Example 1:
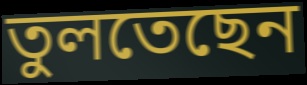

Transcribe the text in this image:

তুলতেছেন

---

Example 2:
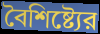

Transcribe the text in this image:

বৈশিষ্ট্যের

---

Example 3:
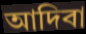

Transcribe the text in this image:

আদিবা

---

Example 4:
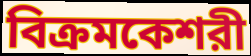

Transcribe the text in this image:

বিক্রমকেশরী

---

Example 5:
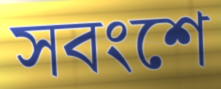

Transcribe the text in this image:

সবংশে